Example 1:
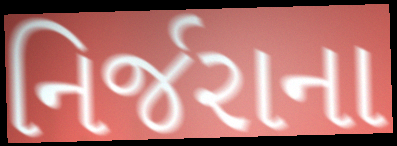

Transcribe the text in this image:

નિર્જરાના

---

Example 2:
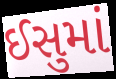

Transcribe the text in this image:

ઈસુમાં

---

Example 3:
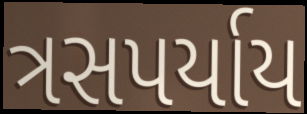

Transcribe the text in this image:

ત્રસપર્યાય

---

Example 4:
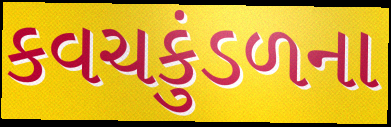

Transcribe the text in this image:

કવચકુંડળના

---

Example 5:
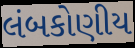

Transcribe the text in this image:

લંબકોણીય